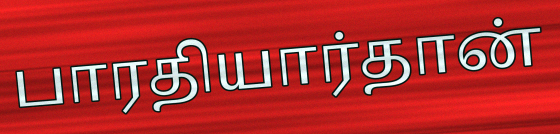
பாரதியார்தான்